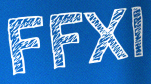
FFXI